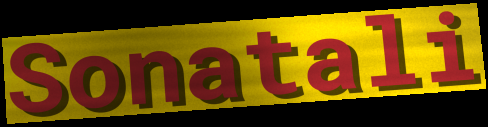
Sonatali